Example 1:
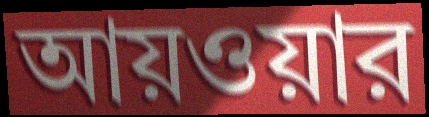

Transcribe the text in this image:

আয়ওয়ার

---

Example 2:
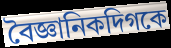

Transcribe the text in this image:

বৈজ্ঞানিকদিগকে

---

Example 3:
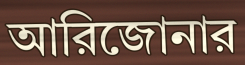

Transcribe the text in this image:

আরিজোনার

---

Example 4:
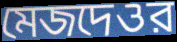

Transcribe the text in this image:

মেজদেওর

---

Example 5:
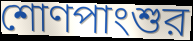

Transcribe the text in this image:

শোণপাংশুর